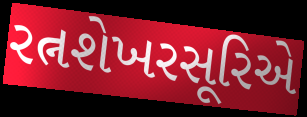
રત્નશેખરસૂરિએ